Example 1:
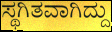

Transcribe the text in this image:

ಸ್ಥಗಿತವಾಗಿದ್ದು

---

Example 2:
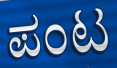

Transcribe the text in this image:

ಪಂಟ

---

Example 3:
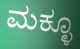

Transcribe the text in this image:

ಮಕ್ಳೂ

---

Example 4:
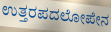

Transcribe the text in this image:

ಉತ್ತರಪದಲೋಪೇನ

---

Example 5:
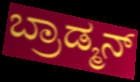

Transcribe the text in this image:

ಬ್ರಾಡ್ಮನ್